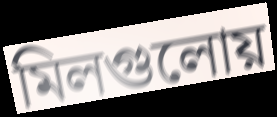
মিলগুলোয়